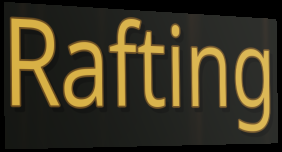
Rafting